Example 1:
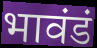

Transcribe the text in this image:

भावंडं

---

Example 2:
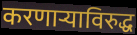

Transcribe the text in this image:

करणाऱ्याविरुद्ध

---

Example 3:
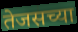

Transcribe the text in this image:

तेजसच्या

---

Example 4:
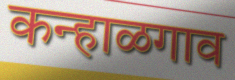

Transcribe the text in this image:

कन्हाळगाव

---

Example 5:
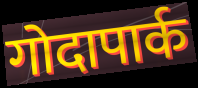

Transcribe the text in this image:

गोदापार्क